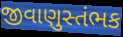
જીવાણુસ્તંભક